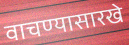
वाचण्यासारखे